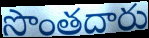
సొంతదారు